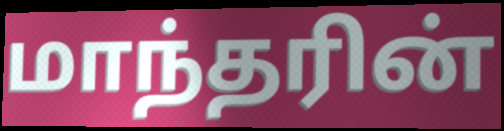
மாந்தரின்